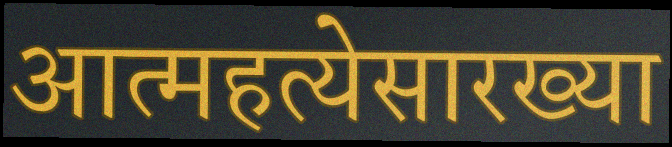
आत्महत्येसारख्या